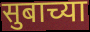
सुबाच्या